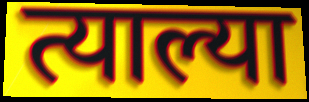
त्याल्या